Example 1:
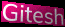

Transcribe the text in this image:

Gitesh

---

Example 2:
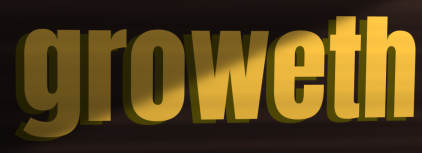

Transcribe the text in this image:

groweth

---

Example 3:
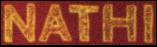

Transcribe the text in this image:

NATHI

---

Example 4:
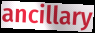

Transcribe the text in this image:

ancillary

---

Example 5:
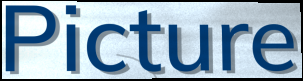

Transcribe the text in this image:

Picture